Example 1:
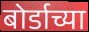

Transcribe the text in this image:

बोर्डाच्या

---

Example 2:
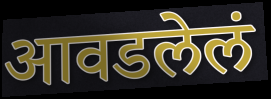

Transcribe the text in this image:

आवडलेलं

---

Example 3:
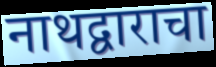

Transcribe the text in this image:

नाथद्वाराचा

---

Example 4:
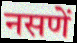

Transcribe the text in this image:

नसणें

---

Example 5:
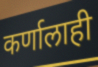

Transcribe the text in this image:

कर्णालाही